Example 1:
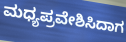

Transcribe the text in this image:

ಮಧ್ಯಪ್ರವೇಶಿಸಿದಾಗ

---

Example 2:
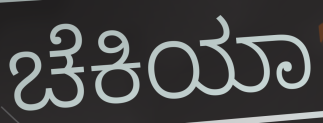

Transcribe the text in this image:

ಚೆಕಿಯಾ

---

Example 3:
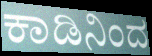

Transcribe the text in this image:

ಕಾಡಿನಿಂದ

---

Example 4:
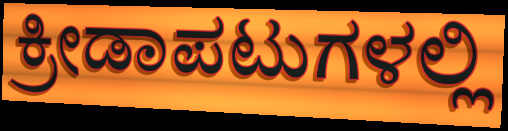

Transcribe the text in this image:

ಕ್ರೀಡಾಪಟುಗಳಲ್ಲಿ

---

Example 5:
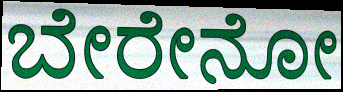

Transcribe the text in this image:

ಬೇರೇನೋ